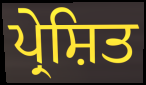
ਪ੍ਰੇਸ਼ਿਤ